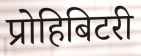
प्रोहिबिटरी